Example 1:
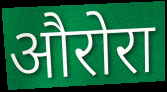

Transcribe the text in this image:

औरोरा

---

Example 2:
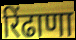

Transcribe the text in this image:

रिंढाणा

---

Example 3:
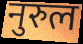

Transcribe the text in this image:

नुरुल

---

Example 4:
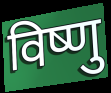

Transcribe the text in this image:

विष्‍णु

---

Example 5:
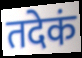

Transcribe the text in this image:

तदेकं